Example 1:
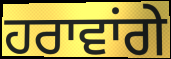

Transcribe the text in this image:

ਹਰਾਵਾਂਗੇ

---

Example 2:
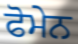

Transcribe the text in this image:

ਫੋਮੇਨ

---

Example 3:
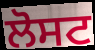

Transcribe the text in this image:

ਲੋਸਟ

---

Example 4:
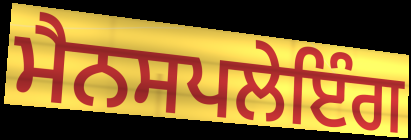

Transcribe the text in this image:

ਮੈਨਸਪਲੇਇੰਗ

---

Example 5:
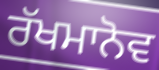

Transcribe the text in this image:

ਰੱਖਮਾਨੋਵ